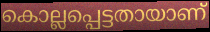
കൊല്ലപ്പെട്ടതായാണ്